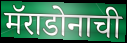
मॅराडोनाची